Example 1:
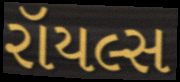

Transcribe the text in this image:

રૉયલ્સ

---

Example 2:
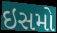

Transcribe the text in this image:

ઇસમો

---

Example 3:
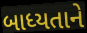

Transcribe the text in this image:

બાધ્યતાને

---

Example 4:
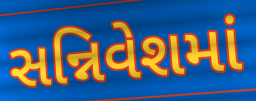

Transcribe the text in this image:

સન્નિવેશમાં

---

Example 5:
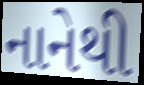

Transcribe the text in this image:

નાનેથી